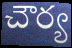
చౌర్య